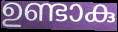
ഉണ്ടാകു